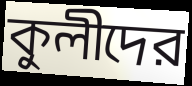
কুলীদের